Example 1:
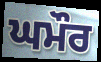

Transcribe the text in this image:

ਘਮੌਰ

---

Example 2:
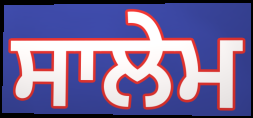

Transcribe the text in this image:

ਸਾਲੇਮ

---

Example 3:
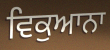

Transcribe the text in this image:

ਵਿਕੁਆਨਾ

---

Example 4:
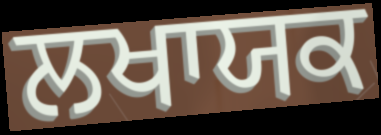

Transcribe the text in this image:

ਲਖਾਯਕ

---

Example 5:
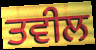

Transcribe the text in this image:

ਤਵੀਲ